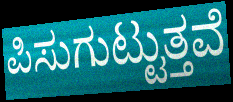
ಪಿಸುಗುಟ್ಟುತ್ತವೆ